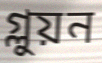
গ্লুয়ন